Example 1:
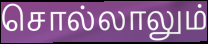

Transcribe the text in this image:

சொல்லாலும்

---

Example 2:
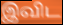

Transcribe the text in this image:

இவிட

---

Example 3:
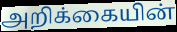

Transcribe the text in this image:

அறிக்கையின்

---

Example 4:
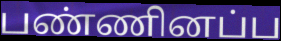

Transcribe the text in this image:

பண்ணினப்ப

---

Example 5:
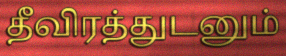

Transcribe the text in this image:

தீவிரத்துடனும்